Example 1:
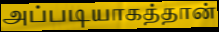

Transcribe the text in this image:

அப்படியாகத்தான்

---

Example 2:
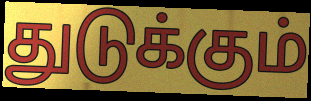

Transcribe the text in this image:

துடுக்கும்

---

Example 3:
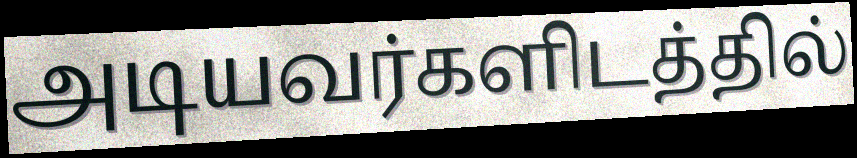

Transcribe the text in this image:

அடியவர்களிடத்தில்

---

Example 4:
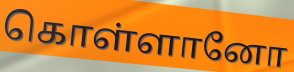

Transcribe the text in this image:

கொள்ளானோ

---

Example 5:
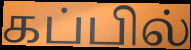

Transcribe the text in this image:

கப்பில்